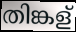
തിങ്കള്